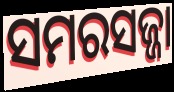
ସମରସଜ୍ଜା